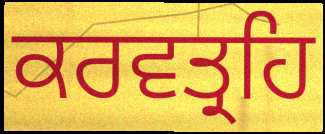
ਕਰਵਤ੍ਰਹਿ